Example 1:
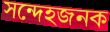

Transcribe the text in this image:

সন্দেহজনক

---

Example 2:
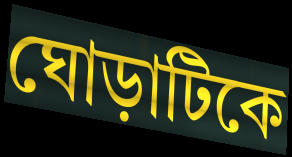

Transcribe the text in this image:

ঘোড়াটিকে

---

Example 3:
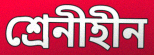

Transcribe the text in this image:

শ্রেনীহীন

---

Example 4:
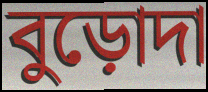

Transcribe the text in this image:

বুড়োদা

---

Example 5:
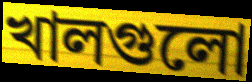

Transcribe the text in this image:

খালগুলো